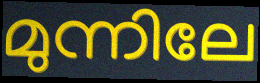
മുന്നിലേ